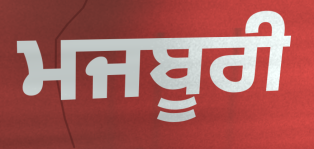
ਮਜਬੂਰੀ